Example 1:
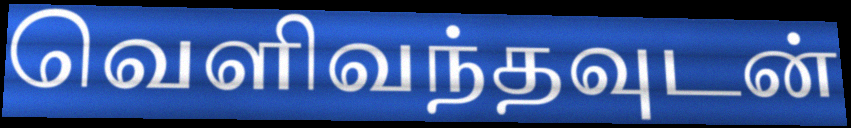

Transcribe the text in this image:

வெளிவந்தவுடன்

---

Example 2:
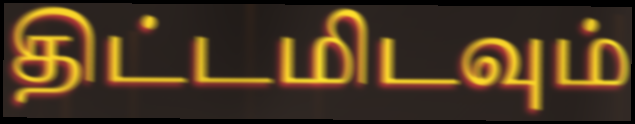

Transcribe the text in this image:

திட்டமிடவும்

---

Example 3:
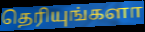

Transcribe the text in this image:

தெரியுங்களா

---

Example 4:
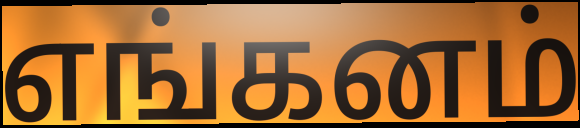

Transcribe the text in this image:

எங்கனம்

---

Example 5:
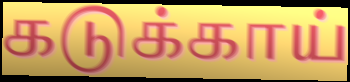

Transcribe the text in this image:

கடுக்காய்